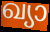
ഖ്യാ